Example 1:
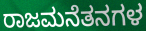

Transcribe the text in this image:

ರಾಜಮನೆತನಗಳ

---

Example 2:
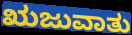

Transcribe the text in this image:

ಋಜುವಾತು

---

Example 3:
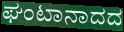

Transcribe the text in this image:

ಘಂಟಾನಾದದ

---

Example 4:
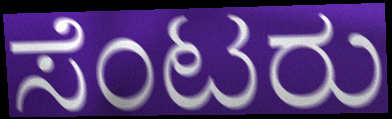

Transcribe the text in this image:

ಸೆಂಟರು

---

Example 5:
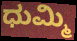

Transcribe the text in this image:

ಧುಮ್ಮಿ